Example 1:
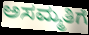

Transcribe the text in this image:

ಅಸಮ್ಮತಿಗೆ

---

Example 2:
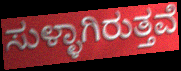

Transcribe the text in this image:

ಸುಳ್ಳಾಗಿರುತ್ತವೆ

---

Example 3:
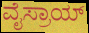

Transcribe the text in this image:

ವೈಸ್ರಾಯ್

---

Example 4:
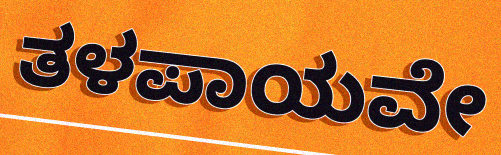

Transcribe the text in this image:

ತಳಪಾಯವೇ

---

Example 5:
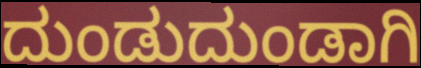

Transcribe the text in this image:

ದುಂಡುದುಂಡಾಗಿ